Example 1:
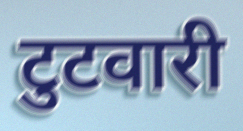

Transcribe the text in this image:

टुटवारी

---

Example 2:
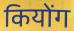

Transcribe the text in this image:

कियोंग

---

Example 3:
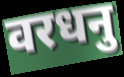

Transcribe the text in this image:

वरधनु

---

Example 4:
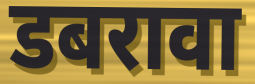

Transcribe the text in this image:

डबरावा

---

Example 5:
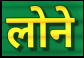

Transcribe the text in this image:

लोने